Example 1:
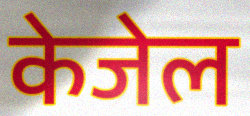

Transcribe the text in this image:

केजेल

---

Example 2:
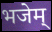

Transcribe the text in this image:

भजेम्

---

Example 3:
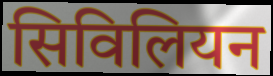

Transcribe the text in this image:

सिविलियन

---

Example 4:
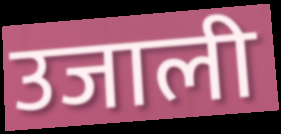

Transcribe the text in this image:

उजाली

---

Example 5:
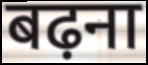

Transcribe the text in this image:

बढ़ना